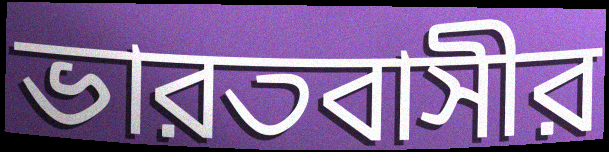
ভারতবাসীর